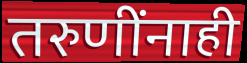
तरुणींनाही